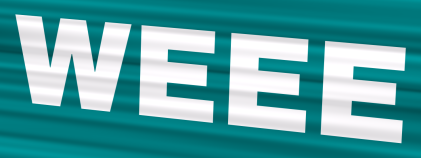
WEEE